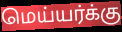
மெய்யர்க்கு